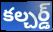
కల్చర్డ్